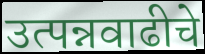
उत्पन्नवाढीचे